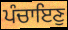
ਪੰਚਾਇਣੁ